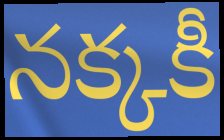
నక్కకీ